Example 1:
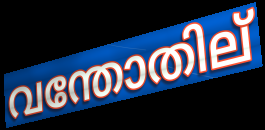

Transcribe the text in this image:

വന്തോതില്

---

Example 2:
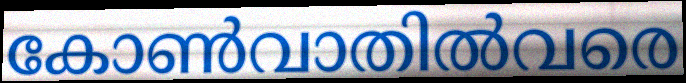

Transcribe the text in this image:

കോൺവാതിൽവരെ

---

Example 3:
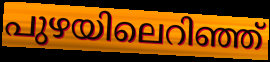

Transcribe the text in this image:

പുഴയിലെറിഞ്ഞ്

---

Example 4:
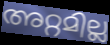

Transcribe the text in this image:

അറ്റമില്ല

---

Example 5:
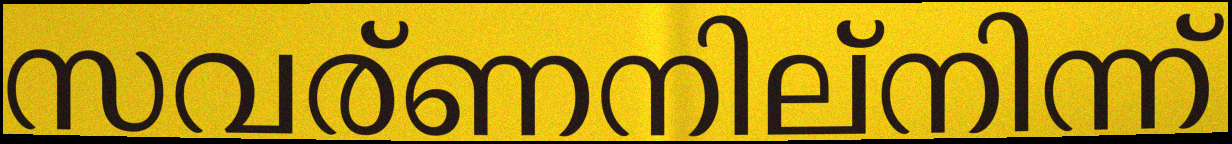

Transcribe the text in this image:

സവര്ണനില്നിന്ന്